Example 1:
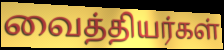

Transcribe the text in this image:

வைத்தியர்கள்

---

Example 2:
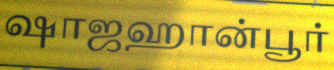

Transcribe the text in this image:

ஷாஜஹான்பூர்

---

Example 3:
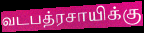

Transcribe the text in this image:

வடபத்ரசாயிக்கு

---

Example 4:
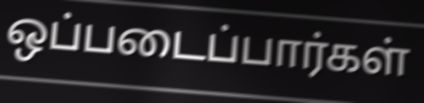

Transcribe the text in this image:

ஒப்படைப்பார்கள்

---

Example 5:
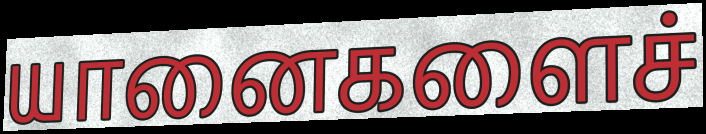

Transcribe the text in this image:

யானைகளைச்